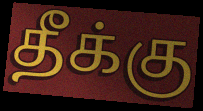
தீக்கு